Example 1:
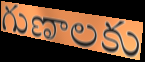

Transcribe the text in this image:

గుణాలకు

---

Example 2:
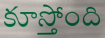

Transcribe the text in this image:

కూస్తోంది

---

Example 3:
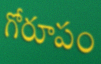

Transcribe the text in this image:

గోరూపం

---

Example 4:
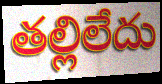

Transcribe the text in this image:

తల్లిలేదు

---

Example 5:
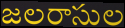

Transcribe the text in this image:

జలరాసుల